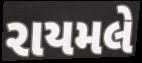
રાયમલે